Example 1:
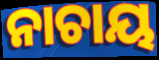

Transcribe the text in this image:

ନାଚାୟ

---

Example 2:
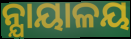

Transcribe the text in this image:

ନ୍ଯାୟାଳୟ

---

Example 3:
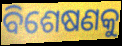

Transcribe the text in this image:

ବିଶେଷଣକୁ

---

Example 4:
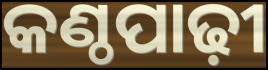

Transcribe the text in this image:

କଣ୍ଠପାଢ଼ୀ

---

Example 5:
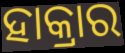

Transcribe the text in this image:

ହାକ୍ରାର